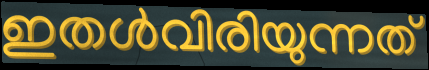
ഇതൾവിരിയുന്നത്